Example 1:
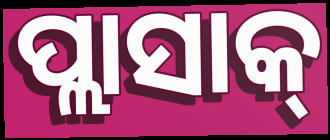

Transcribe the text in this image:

ପ୍ଲାସାକ୍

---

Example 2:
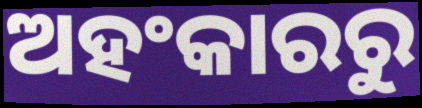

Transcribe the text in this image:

ଅହଂକାରରୁ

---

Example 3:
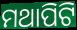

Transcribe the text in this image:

ମଥାପିଟି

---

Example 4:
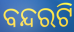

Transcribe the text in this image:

ବନ୍ଦରଟି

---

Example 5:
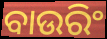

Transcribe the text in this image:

ବାଉରିଂ